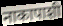
नाकापाशी